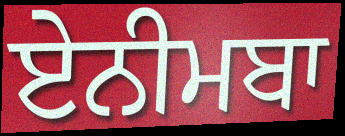
ਏਨੀਮਬਾ